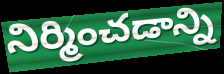
నిర్మించడాన్ని